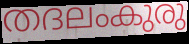
തദലംകുരു